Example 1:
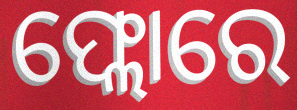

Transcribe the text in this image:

ଫ୍ଲୋରେ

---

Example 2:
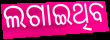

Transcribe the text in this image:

ଲଗାଇଥିବ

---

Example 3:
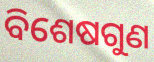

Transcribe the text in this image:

ବିଶେଷଗୁଣ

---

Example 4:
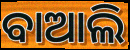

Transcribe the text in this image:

ବାଆଲି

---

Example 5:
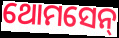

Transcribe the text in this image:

ଥୋମସେନ୍